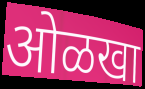
ओळखा